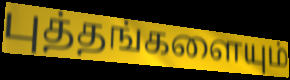
புத்தங்களையும்